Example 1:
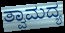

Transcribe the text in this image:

ತ್ವಾಮದ್ಯ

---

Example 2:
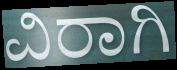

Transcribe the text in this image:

ವಿರಾಗಿ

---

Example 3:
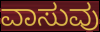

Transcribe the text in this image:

ವಾಸುವು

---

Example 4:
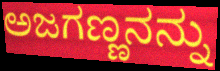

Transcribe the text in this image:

ಅಜಗಣ್ಣನನ್ನು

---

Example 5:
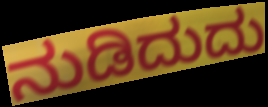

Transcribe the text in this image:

ನುಡಿದುದು